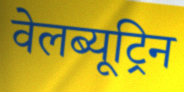
वेलब्यूट्रिन